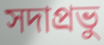
সদাপ্রভু